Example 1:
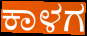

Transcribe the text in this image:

ಕಾಳಗ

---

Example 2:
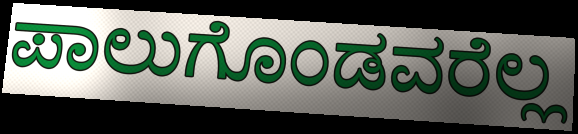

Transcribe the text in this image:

ಪಾಲುಗೊಂಡವರೆಲ್ಲ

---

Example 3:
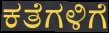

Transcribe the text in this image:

ಕತೆಗಳಿಗೆ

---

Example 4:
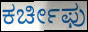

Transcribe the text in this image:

ಕರ್ಚೀಫು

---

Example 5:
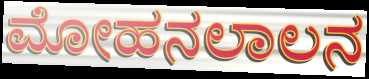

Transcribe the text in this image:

ಮೋಹನಲಾಲನ